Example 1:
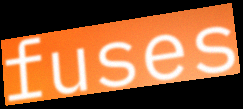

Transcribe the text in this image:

fuses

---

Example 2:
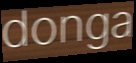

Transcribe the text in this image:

donga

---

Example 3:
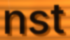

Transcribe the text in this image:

nst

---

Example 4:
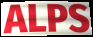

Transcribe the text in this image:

ALPS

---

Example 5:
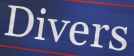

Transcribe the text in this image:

Divers